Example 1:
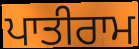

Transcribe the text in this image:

ਪਾਤੀਰਾਮ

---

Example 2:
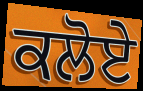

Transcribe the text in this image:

ਕਲੋਏ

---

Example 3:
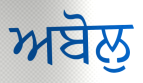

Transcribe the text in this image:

ਅਬੋਲੁ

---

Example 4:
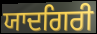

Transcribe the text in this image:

ਯਾਦਗਿਰੀ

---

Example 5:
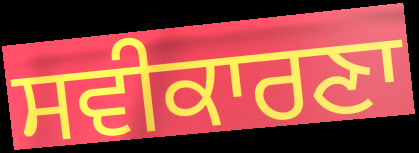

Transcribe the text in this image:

ਸਵੀਕਾਰਣਾ